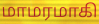
மாமரமாகி